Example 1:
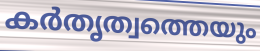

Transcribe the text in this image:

കർതൃത്വത്തെയും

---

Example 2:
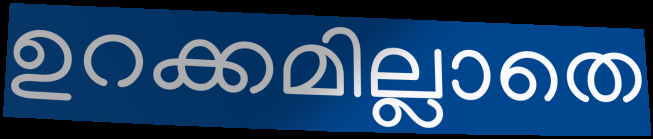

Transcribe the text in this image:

ഉറക്കമില്ലാതെ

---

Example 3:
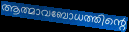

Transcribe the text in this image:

ആത്മാവബോധത്തിന്റെ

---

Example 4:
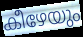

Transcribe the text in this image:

കീഴേയും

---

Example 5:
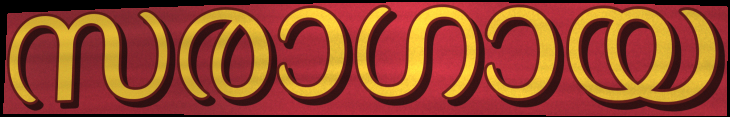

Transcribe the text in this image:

സരാഗായ